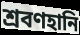
শ্রবণহানি